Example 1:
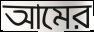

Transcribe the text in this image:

আমের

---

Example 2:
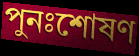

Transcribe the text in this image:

পুনঃশোষণ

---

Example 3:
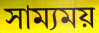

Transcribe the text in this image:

সাম্যময়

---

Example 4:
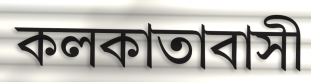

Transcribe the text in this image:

কলকাতাবাসী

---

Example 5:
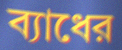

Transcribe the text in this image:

ব্যাধের